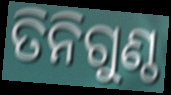
ତିନିଗୁଣ୍ଠ